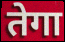
तेगा